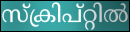
സ്ക്രിപ്റ്റിൽ